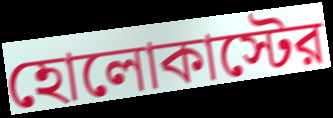
হোলোকাস্টের